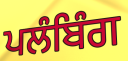
ਪਲੰਬਿੰਗ